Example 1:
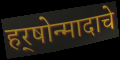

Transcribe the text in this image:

हर्षोन्मादाचे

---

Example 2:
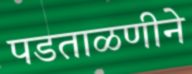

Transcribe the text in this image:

पडताळणीने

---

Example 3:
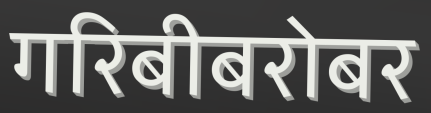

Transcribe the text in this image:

गरिबीबरोबर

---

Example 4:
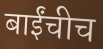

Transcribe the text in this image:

बाईंचीच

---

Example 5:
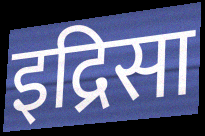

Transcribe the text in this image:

इद्रिसा